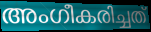
അംഗീകരിച്ചത്